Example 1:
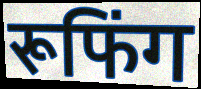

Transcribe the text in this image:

रूफिंग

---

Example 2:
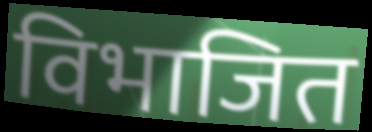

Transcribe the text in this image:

विभाजित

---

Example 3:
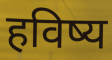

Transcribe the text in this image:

हविष्य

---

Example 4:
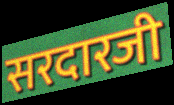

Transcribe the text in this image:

सरदारजी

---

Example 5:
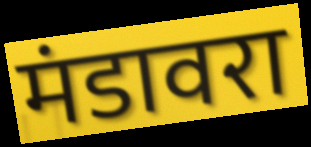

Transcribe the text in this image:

मंडावरा